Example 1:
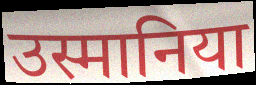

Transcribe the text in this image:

उस्मानिया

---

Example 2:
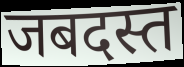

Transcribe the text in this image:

जबदस्त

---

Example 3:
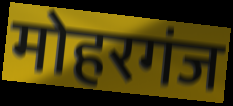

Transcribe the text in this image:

मोहरगंज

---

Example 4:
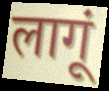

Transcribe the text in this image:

लागूं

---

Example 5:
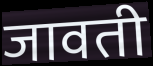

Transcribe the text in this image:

जावती